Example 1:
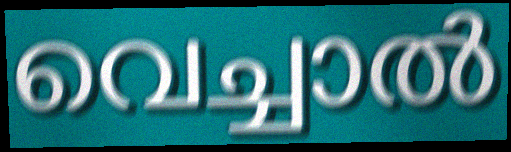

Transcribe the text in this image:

വെച്ചാൽ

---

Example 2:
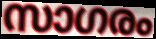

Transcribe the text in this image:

സാഗരം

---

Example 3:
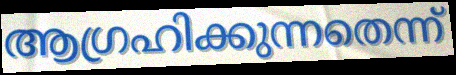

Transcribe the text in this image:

ആഗ്രഹിക്കുന്നതെന്ന്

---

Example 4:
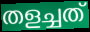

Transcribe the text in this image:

തളച്ചത്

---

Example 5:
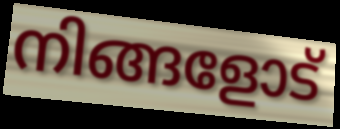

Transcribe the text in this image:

നിങ്ങളോട്